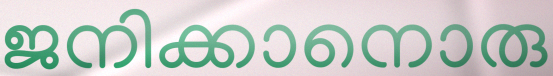
ജനിക്കാനൊരു